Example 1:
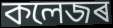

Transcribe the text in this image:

কলেজৰ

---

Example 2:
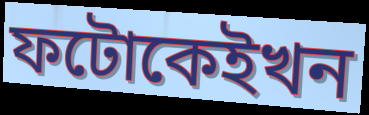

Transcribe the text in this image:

ফটোকেইখন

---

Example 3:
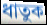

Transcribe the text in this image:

ধাতুক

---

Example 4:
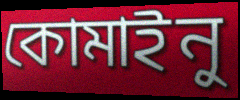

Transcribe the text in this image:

কোমাইনু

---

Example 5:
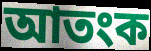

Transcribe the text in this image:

আতংক